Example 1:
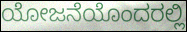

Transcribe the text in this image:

ಯೋಜನೆಯೊಂದರಲ್ಲಿ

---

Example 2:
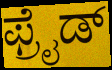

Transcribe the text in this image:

ಫ್ರೈಡ್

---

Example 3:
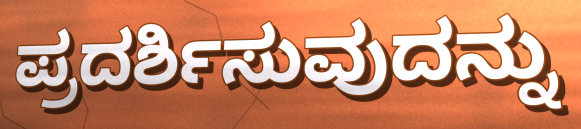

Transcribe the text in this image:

ಪ್ರದರ್ಶಿಸುವುದನ್ನು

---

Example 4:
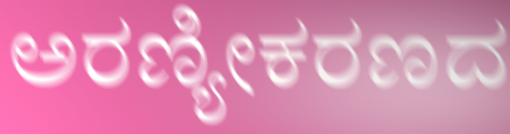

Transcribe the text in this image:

ಅರಣ್ಯೀಕರಣದ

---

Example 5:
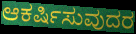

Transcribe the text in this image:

ಆಕರ್ಷಿಸುವುದರ